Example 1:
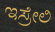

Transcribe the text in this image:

ಇಸ್ರೇಲಿ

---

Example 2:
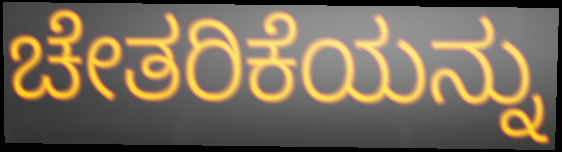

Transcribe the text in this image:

ಚೇತರಿಕೆಯನ್ನು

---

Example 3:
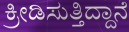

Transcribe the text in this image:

ಕ್ರೀಡಿಸುತ್ತಿದ್ದಾನೆ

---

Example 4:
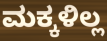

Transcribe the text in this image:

ಮಕ್ಕಳಿಲ್ಲ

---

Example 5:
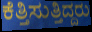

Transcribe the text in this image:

ಕೆತ್ತಿಸುತ್ತಿದ್ದರು